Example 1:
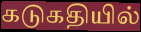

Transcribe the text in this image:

கடுகதியில்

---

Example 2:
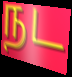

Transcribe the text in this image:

நட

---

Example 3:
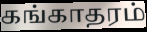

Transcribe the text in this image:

கங்காதரம்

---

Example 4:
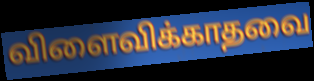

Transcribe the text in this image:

விளைவிக்காதவை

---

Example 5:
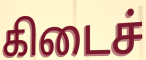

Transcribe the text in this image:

கிடைச்